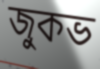
জুকভ